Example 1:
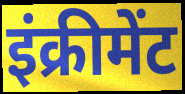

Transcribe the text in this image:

इंक्रीमेंट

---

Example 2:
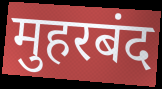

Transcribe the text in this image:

मुहरबंद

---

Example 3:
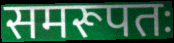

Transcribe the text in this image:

समरूपतः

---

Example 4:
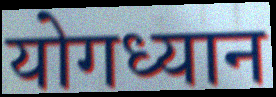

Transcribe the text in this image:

योगध्यान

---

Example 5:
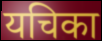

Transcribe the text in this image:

यचिका